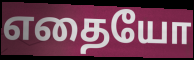
எதையோ